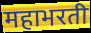
महाभरती